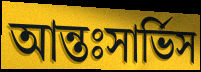
আন্তঃসার্ভিস